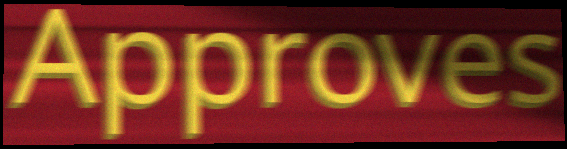
Approves